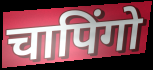
चापिंगो